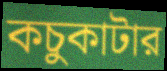
কচুকাটার